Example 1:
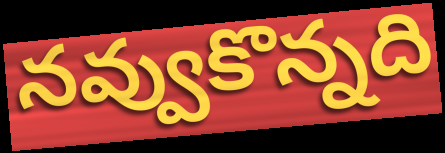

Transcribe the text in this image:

నవ్వుకొన్నది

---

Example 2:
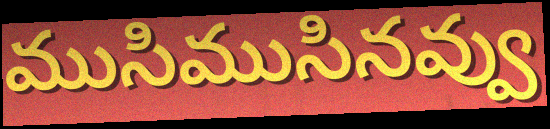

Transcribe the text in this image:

ముసిముసినవ్వు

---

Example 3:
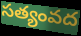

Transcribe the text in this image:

సత్యంవద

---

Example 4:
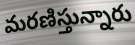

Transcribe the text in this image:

మరణిస్తున్నారు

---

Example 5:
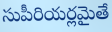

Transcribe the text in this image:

సుపీరియర్లమైతే